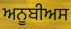
ਅਨੂਬੀਅਸ